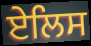
ਏਲਿਸ